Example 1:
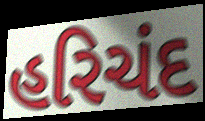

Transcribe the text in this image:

હરિચંદ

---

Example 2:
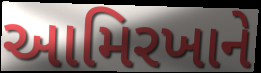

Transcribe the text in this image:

આમિરખાને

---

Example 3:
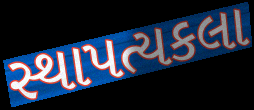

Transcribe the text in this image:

સ્થાપત્યકલા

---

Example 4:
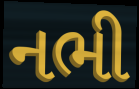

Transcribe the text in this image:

નભી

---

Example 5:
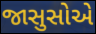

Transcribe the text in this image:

જાસુસોએ